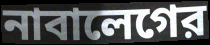
নাবালেগের